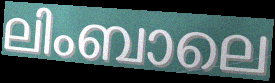
ലിംബാലെ